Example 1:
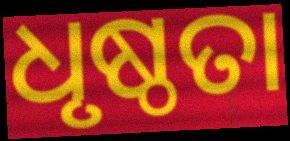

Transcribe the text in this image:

ଧୃଷ୍ଠତା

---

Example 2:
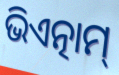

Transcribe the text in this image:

ଭିଏତ୍ନାମ୍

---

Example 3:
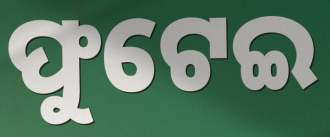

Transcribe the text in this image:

ଫୁଟେଇ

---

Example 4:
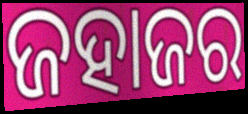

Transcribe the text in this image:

ଜହାଜର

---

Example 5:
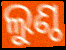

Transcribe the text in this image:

ଲୁଣ୍ଠ